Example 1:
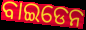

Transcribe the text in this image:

ବାଇଡେନ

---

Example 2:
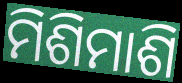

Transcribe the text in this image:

ମିଶିମାଶି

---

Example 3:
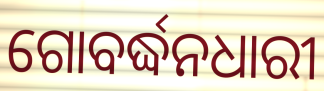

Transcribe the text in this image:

ଗୋବର୍ଦ୍ଧନଧାରୀ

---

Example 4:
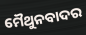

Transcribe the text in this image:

ମୈଥୁନବାଦର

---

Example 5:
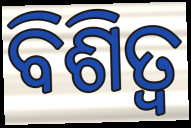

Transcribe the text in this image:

ବିଶିତ୍ଵ